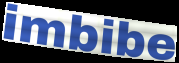
imbibe